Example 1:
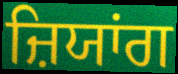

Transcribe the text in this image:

ਜ਼ਿਯਾਂਗ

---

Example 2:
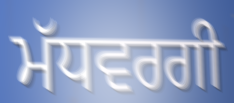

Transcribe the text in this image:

ਮੱਧਵਰਗੀ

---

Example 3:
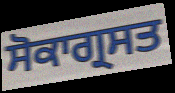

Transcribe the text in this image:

ਸੋਕਾਗ੍ਰਸਤ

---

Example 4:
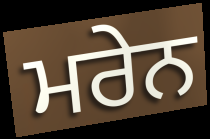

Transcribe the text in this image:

ਮਰੇਨ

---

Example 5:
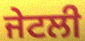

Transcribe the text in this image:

ਜੇਟਲੀ